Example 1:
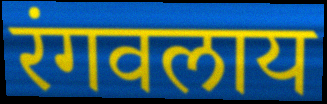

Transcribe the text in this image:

रंगवलाय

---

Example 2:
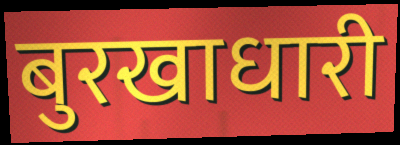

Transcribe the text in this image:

बुरखाधारी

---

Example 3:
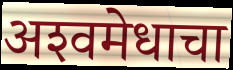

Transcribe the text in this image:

अश्‍वमेधाचा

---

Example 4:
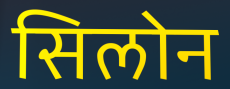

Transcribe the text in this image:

सिलोन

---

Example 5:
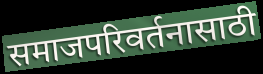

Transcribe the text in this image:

समाजपरिवर्तनासाठी